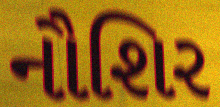
નૌશિર